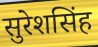
सुरेशसिंह